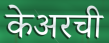
केअरची